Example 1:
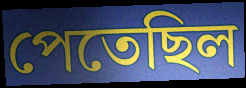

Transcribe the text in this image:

পেতেছিল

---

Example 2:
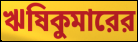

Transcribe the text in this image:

ঋষিকুমারের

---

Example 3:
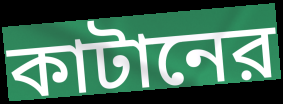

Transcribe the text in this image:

কাটানের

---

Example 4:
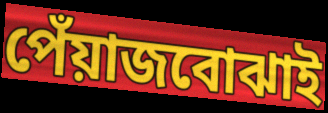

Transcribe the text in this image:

পেঁয়াজবোঝাই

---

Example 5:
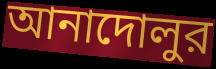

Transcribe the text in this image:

আনাদোলুর